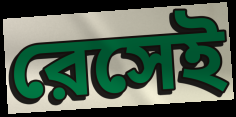
রেসেই